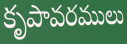
కృపావరములు